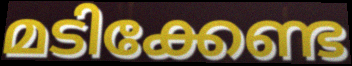
മടിക്കേണ്ട